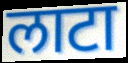
लाटा